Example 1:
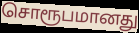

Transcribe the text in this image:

சொரூபமானது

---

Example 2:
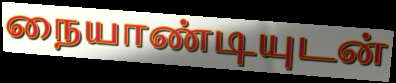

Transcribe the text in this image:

நையாண்டியுடன்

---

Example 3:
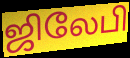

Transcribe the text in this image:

ஜிலேபி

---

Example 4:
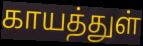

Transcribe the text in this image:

காயத்துள்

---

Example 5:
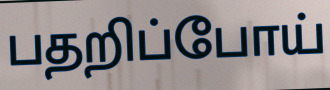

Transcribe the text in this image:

பதறிப்போய்